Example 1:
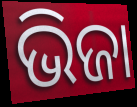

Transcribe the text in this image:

ଭିଜା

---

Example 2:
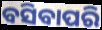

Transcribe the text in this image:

ବସିବାପରି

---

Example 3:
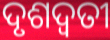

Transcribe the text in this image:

ଦୃଶଦ୍ୱତୀ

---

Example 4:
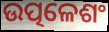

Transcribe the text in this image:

ଉତ୍ପଳେଶଂ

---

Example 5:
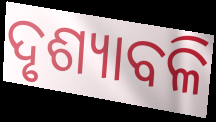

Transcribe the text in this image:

ଦୃଶ୍ୟାବଳି